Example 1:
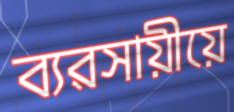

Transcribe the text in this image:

ব্যৱসায়ীয়ে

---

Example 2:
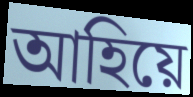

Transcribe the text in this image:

আহিয়ে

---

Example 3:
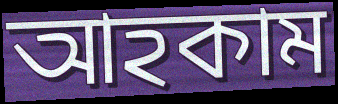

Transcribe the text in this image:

আহকাম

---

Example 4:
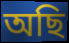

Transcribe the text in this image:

অছি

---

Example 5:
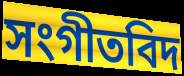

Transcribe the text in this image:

সংগীতবিদ